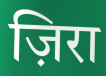
ज़िरा